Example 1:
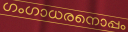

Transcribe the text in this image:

ഗംഗാധരനൊപ്പം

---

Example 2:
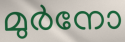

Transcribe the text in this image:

മുർനോ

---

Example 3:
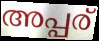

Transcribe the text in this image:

അപ്പര്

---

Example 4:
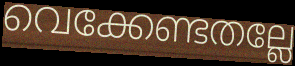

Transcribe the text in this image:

വെക്കേണ്ടതല്ലേ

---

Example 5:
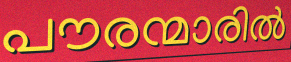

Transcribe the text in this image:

പൗരന്മാരിൽ